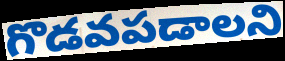
గొడవపడాలని